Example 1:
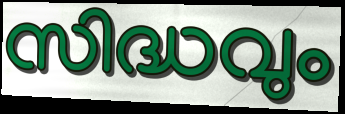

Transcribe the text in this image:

സിദ്ധവും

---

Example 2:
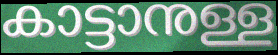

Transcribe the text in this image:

കാട്ടാനുള്ള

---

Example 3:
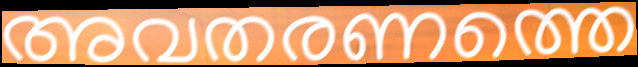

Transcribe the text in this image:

അവതരണത്തെ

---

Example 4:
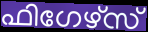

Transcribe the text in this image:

ഫിഗേഴ്സ്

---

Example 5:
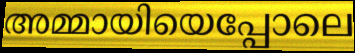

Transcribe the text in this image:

അമ്മായിയെപ്പോലെ